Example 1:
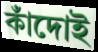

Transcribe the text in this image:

কাঁদোই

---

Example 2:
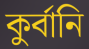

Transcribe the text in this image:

কুর্বানি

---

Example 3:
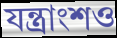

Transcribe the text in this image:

যন্ত্রাংশও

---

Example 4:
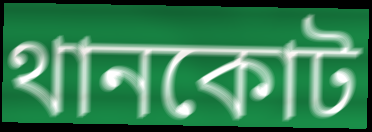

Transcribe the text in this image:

থানকোট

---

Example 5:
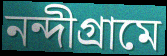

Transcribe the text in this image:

নন্দীগ্রামে